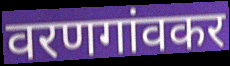
वरणगांवकर